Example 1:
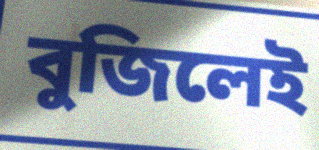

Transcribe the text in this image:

বুজিলেই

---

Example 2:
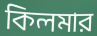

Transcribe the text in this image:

কিলমার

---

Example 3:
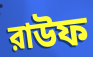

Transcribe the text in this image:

রাউফ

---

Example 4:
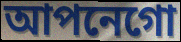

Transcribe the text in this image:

আপনেগো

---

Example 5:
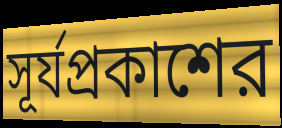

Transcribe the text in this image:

সূর্যপ্রকাশের